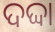
ଦଦ୍ଦା